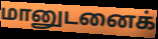
மானுடனைக்